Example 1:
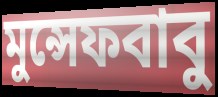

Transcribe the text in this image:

মুন্সেফবাবু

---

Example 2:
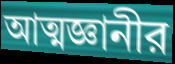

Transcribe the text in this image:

আত্মজ্ঞানীর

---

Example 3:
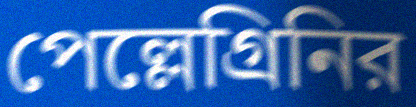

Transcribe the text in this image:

পেল্লেগ্রিনির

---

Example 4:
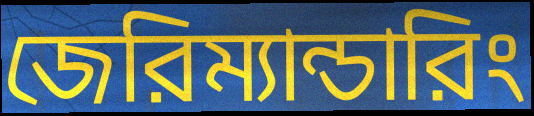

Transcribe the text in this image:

জেরিম্যান্ডারিং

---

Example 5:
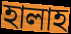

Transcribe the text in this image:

হালাহ